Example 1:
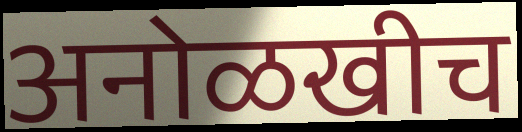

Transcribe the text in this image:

अनोळखीच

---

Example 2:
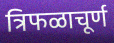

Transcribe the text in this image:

त्रिफळाचूर्ण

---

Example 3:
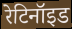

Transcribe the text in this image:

रेटिनॉइड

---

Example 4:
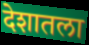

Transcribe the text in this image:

देशातला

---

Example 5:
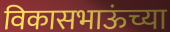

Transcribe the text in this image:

विकासभाऊंच्या